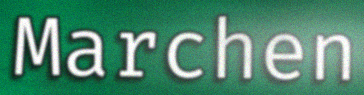
Marchen